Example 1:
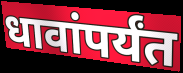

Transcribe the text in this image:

धावांपर्यंत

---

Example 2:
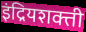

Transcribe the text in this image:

इंद्रियशक्ती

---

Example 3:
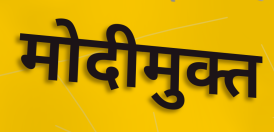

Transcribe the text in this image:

मोदीमुक्त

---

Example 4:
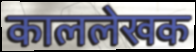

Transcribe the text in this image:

काललेखक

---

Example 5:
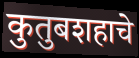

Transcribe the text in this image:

कुतुबशहाचे